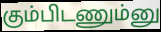
கும்பிடணும்னு